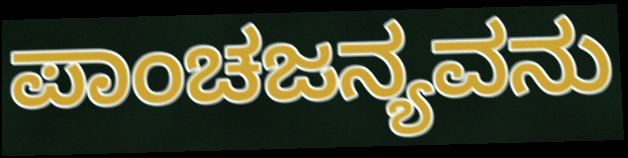
ಪಾಂಚಜನ್ಯವನು